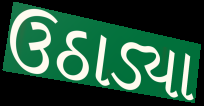
ઉઠાડ્યા